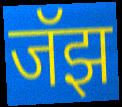
जॅझ